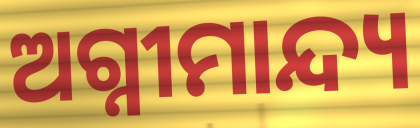
ଅଗ୍ନୀମାନ୍ଦ୍ୟ